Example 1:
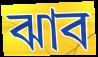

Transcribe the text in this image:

ঝাব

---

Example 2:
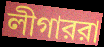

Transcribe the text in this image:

লীগাররা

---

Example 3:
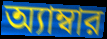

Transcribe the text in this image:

অ্যাম্বার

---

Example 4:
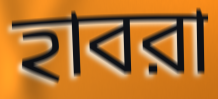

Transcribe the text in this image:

হাবরা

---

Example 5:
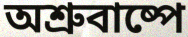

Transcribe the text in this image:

অশ্রুবাষ্পে